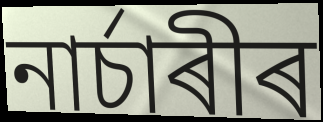
নাৰ্চাৰীৰ